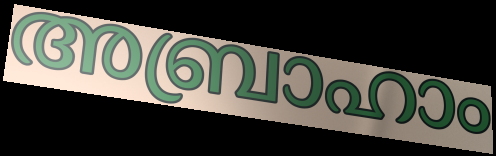
അബ്രാഹാം